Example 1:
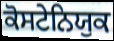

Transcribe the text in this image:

ਕੋਸਟੇਨਿਯੁਕ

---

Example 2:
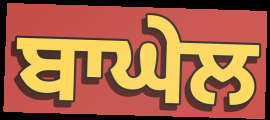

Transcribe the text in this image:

ਬਾਘੇਲ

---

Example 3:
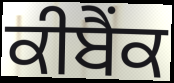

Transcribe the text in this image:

ਕੀਬੈਂਕ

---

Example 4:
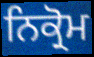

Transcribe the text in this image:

ਨਿਕ੍ਰੋਮ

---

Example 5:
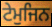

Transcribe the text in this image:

ਟੇਮੁਜਿਨ